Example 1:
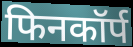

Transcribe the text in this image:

फिनकॉर्प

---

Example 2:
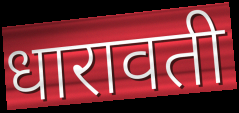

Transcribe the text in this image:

धारावती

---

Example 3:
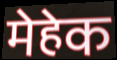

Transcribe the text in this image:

मेहेक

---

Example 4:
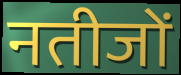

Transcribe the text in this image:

नतीजों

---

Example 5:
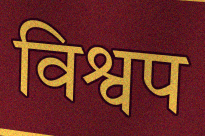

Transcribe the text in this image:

विश्वप